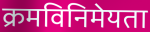
क्रमविनिमेयता